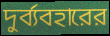
দুর্ব্যবহারের